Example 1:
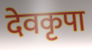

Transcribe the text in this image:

देवकृपा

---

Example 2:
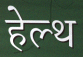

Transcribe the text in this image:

हेल्थ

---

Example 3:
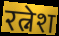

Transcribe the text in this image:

रत्नेश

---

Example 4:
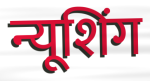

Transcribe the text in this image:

न्यूशिंग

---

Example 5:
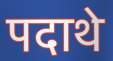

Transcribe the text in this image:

पदाथे